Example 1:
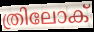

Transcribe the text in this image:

ത്രിലോക്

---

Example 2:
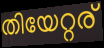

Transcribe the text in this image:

തിയേറ്റര്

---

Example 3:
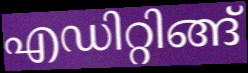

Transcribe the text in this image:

എഡിറ്റിങ്ങ്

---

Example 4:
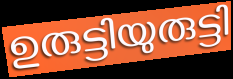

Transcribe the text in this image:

ഉരുട്ടിയുരുട്ടി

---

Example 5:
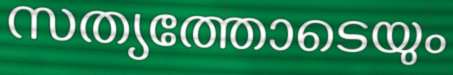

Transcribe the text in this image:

സത്യത്തോടെയും